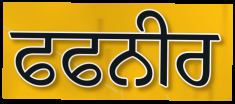
ਫਫਨੀਰ